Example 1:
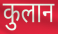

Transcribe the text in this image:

कुलान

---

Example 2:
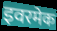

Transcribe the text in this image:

इवरमेक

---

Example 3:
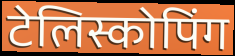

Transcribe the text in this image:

टेलिस्कोपिंग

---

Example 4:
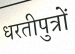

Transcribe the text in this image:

धरतीपुत्रों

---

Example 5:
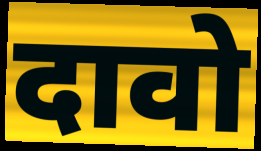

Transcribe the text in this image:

दावो